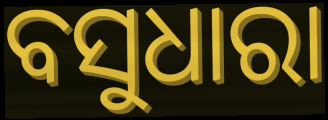
ବସୁଧାରା